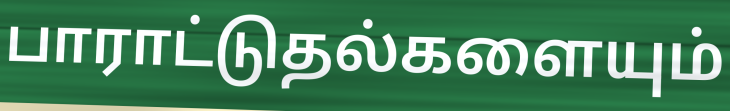
பாராட்டுதல்களையும்